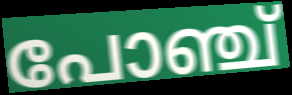
പോഞ്ച്